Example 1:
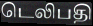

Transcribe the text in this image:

டெலிபதி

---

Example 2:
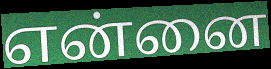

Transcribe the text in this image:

என்னை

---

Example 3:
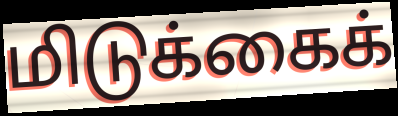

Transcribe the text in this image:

மிடுக்கைக்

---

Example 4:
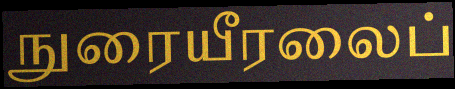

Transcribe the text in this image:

நுரையீரலைப்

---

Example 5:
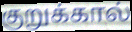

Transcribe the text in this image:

குறுக்கால்